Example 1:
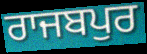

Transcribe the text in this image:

ਰਾਜਬਪੁਰ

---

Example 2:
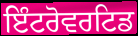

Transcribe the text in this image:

ਇੰਟਰੋਵਰਟਿਡ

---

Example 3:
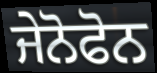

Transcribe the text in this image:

ਜੇਨੋਫੋਨ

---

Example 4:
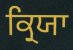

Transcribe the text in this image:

ਕ੍ਰਿਯਾ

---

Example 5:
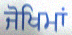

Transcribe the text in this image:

ਜੋਖਿਮਾਂ